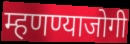
म्हणण्याजोगी